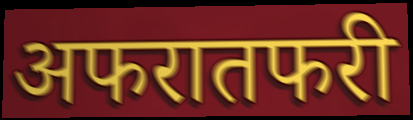
अफरातफरी